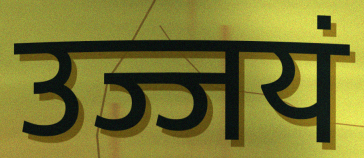
उज्जयं